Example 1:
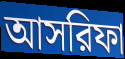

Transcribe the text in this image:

আসরিফা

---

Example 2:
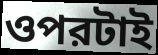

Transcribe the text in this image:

ওপরটাই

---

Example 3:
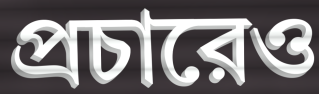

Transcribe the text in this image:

প্রচারেও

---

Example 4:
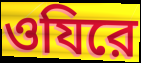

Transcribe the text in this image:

ওযিরে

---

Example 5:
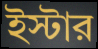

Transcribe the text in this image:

ইস্টার